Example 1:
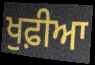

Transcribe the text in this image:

ਖੁਫ਼ੀਆ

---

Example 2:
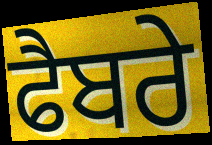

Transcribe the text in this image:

ਫੈਬਰੇ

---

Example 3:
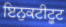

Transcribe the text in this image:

ਇਨੁਕਟੀਟੂਟ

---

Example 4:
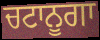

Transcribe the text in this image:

ਚਟਾਨੂਗਾ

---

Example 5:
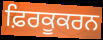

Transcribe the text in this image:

ਫ਼ਿਰਕੂਕਰਨ